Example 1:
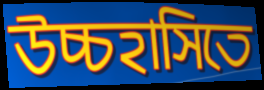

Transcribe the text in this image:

উচ্চহাসিতে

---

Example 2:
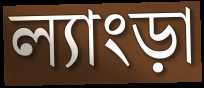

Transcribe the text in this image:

ল্যাংড়া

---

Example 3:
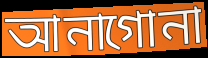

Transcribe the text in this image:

আনাগোনা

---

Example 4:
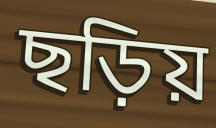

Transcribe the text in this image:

ছড়িয়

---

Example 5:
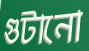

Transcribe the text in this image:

গুটানো